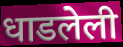
धाडलेली